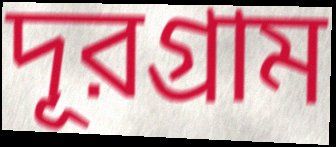
দূরগ্রাম